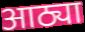
आठ्या